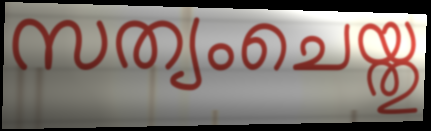
സത്യംചെയ്തു